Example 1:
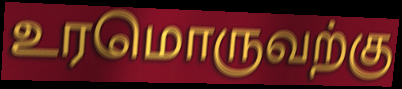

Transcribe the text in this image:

உரமொருவற்கு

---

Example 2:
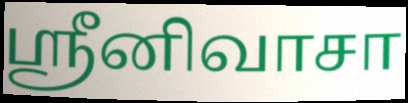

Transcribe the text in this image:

ஸ்ரீனிவாசா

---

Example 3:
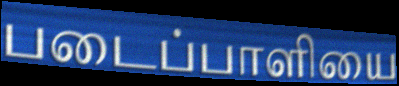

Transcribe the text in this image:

படைப்பாளியை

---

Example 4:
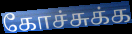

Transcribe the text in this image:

கோச்சுக்க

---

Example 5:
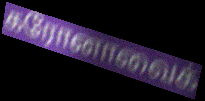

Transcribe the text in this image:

கரோனாவைக்